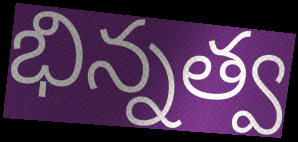
భిన్నత్వ